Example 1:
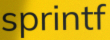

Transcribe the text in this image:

sprintf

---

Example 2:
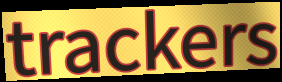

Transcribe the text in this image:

trackers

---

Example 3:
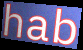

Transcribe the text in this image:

hab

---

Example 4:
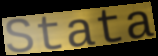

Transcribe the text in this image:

Stata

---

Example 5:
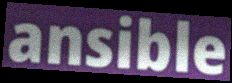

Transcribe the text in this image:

ansible